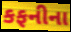
કફનીના